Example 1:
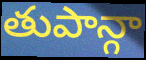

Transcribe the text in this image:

తుపాన్గా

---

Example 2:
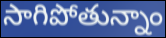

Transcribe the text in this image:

సాగిపోతున్నాం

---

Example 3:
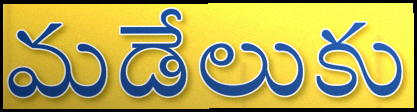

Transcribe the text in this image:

మడేలుకు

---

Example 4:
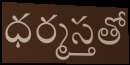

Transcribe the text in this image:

ధర్మస్తతో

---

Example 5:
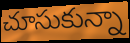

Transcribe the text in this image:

చూసుకున్నా